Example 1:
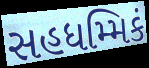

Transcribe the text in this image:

સહધમ્મિકં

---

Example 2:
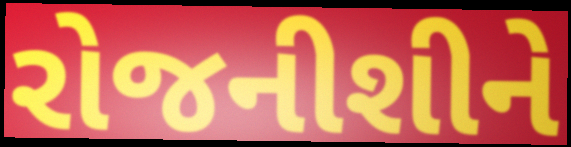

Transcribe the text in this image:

રોજનીશીને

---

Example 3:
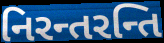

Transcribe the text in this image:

નિરન્તરન્તિ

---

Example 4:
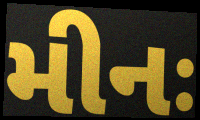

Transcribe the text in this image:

મીનઃ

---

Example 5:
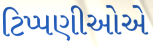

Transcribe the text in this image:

ટિપ્પણીઓએ